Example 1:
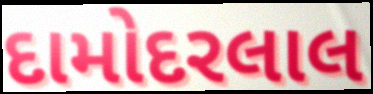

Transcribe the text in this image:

દામોદરલાલ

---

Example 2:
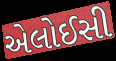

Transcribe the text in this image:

એલોઈસી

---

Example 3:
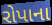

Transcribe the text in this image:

રોપાના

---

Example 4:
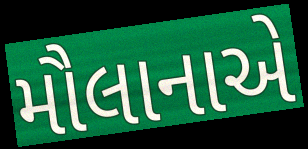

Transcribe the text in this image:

મૌલાનાએ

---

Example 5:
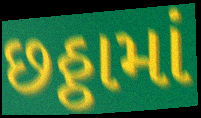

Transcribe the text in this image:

છઠ્ઠામાં